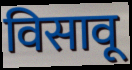
विसावू